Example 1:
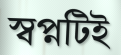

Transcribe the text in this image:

স্বপ্নটিই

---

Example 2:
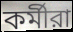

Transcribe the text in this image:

কর্মীরা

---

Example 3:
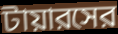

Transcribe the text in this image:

টায়ারসের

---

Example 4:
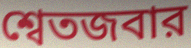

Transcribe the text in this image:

শ্বেতজবার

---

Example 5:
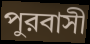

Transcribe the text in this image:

পুরবাসী